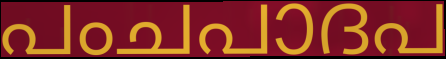
പംചപാദപ